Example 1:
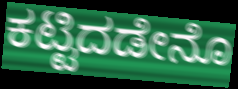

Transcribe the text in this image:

ಕಟ್ಟಿದಡೇನೊ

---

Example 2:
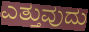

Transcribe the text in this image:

ಎತ್ತುವುದು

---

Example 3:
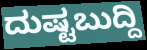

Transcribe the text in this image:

ದುಷ್ಟಬುದ್ದಿ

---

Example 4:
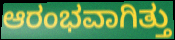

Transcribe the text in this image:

ಆರಂಭವಾಗಿತ್ತು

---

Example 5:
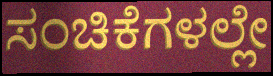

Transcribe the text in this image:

ಸಂಚಿಕೆಗಳಲ್ಲೇ